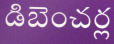
డిబెంచర్ల